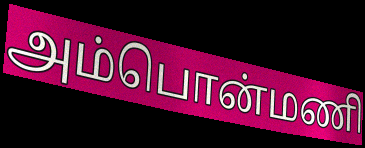
அம்பொன்மணி